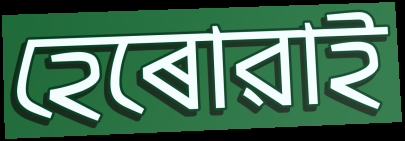
হেৰোৱাই